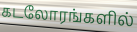
கடலோரங்களில்